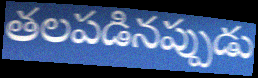
తలపడినప్పుడు